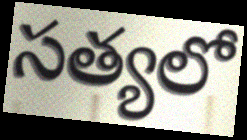
సత్యలో